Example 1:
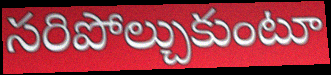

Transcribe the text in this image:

సరిపోల్చుకుంటూ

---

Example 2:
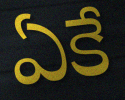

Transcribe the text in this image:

ఏకే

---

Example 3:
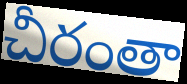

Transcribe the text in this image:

చీరంతా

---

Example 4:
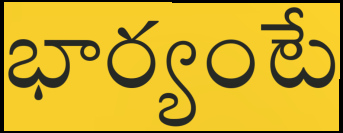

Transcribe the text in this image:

భార్యంటే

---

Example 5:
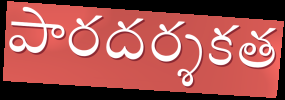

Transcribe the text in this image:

పారదర్శకత